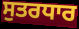
ਸੁਤਰਧਾਰ